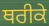
ਥਰੀਕੇ